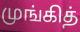
முங்கித்